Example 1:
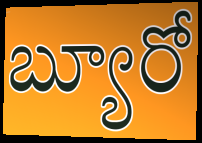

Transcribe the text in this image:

బ్యూరో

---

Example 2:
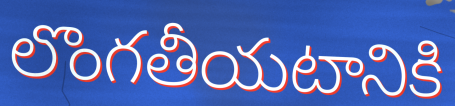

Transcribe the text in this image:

లొంగతీయటానికి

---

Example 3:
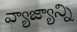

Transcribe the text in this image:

వ్యాజ్యాన్ని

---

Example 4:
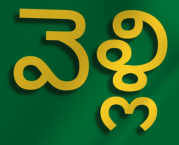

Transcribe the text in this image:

వెళ్లి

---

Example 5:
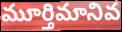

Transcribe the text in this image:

మూర్తిమానివ